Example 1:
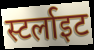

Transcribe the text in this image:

स्टर्लाइट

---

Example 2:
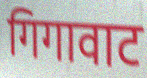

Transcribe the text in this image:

गिगावाट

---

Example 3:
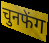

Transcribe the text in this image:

चुनफेंग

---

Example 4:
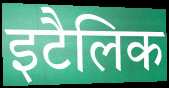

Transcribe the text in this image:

इटैलिक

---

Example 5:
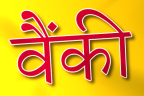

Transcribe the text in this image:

वैंकी